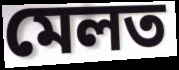
মেলত